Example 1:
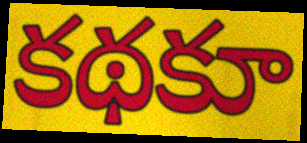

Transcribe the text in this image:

కథకూ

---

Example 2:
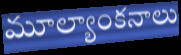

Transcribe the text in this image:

మూల్యాంకనాలు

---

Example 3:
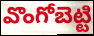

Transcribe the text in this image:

వొంగోబెట్టి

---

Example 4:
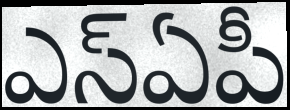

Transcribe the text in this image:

ఎస్ఏపీ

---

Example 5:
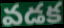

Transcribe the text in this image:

వడక